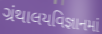
ગ્રંથાલયવિજ્ઞાનમાં